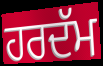
ਹਰਦੱਮ